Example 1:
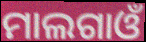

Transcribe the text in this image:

ମାଲଗାଓଁ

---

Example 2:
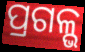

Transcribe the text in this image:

ପ୍ରଗଳ୍ଭ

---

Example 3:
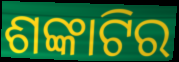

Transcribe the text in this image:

ଶଙ୍କାଟିର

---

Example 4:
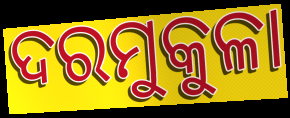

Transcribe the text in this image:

ଦରମୁକୁଳା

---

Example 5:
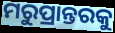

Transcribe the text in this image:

ମରୁପ୍ରାନ୍ତରକୁ